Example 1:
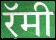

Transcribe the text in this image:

रॅमी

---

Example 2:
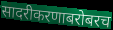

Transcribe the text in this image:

सादरीकरणाबरोबरच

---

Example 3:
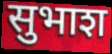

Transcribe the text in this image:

सुभाश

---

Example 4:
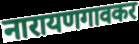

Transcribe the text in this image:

नारायणगावकर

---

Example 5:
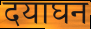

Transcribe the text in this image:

दयाघन